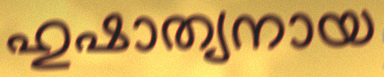
ഹുഷാത്യനായ